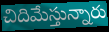
చిదిమేస్తున్నారు